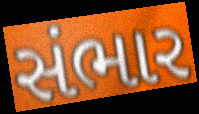
સંભાર